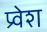
प्र्वेश